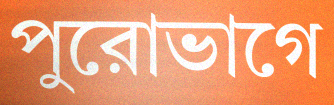
পুরোভাগে